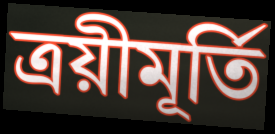
ত্ৰয়ীমূৰ্তি